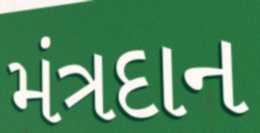
મંત્રદાન